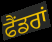
ਫੈਂਡਰਾਂ